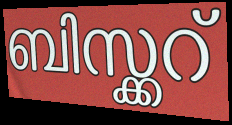
ബിസ്ക്കറ്